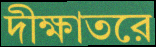
দীক্ষাতরে